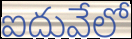
ఐదువేలో